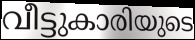
വീട്ടുകാരിയുടെ